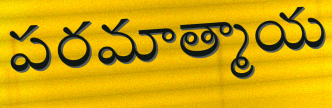
పరమాత్మాయ